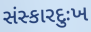
સંસ્કારદુઃખ